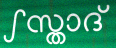
ഽസ്താദ്